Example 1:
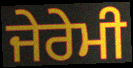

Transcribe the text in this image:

ਜੇਰੇਮੀ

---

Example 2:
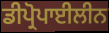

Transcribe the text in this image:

ਡੀਪ੍ਰੋਪਾਈਲੀਨ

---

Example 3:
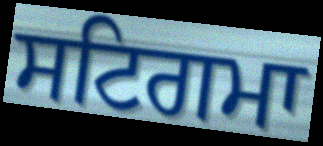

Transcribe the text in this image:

ਸਟਿਗਮਾ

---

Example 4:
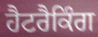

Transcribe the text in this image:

ਹੈਟਰੈਕਿੰਗ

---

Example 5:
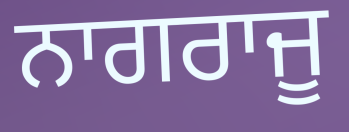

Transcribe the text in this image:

ਨਾਗਰਾਜੂ